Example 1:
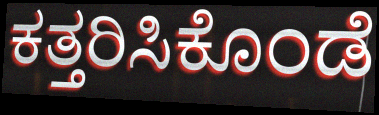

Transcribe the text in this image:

ಕತ್ತರಿಸಿಕೊಂಡೆ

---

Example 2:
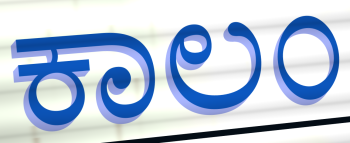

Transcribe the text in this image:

ಕಾಲಂ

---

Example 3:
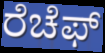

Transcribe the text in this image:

ರೆಚೆಫ್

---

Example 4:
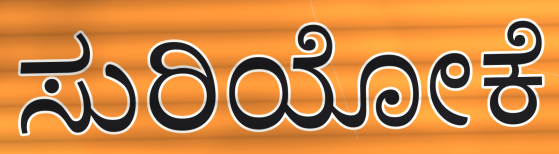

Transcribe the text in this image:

ಸುರಿಯೋಕೆ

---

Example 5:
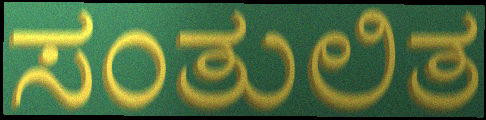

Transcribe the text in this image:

ಸಂತುಲಿತ